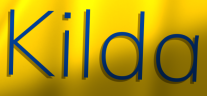
Kilda